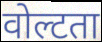
वोल्टता